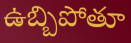
ఉబ్బిపోతూ